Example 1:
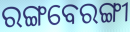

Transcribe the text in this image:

ରଙ୍ଗବେରଙ୍ଗୀ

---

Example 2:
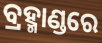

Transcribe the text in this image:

ବ୍ରହ୍ମାଣ୍ଡରେ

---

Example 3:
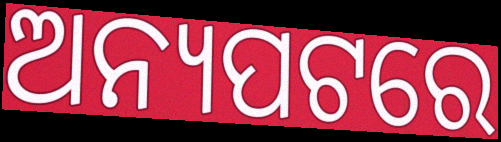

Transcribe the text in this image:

ଅନ୍ୟପଟରେ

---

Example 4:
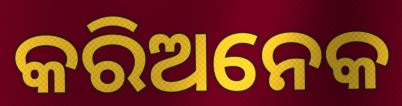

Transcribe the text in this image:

କରିଅନେକ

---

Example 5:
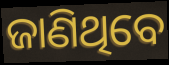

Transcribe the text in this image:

ଜାଣିଥିବେ